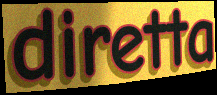
diretta